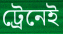
ট্রেনেই